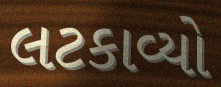
લટકાવ્યો